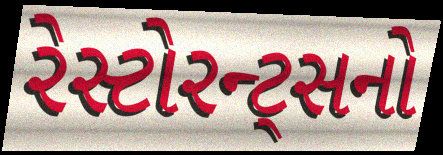
રેસ્ટોરન્ટ્સનો